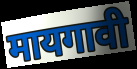
मायगावी